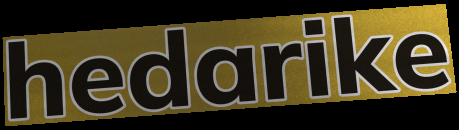
hedarike